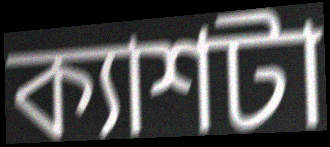
ক্যাশটা